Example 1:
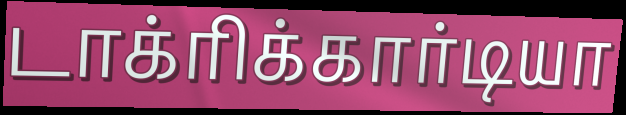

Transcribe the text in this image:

டாக்ரிக்கார்டியா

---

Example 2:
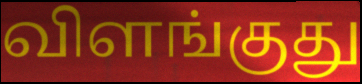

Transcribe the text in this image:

விளங்குது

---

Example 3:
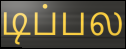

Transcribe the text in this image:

டிப்பல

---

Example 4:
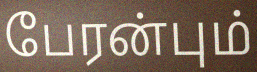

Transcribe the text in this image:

பேரன்பும்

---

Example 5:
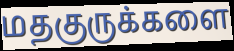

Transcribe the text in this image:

மதகுருக்களை